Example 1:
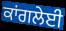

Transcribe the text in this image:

ਕਾਂਗਲੇਈ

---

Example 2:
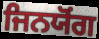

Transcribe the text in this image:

ਜਿਨਯੋਂਗ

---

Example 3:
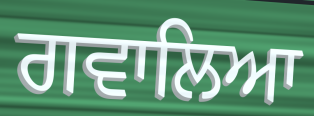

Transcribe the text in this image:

ਗਵਾਲਿਆ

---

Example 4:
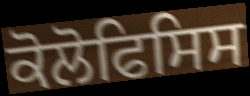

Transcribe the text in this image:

ਕੋਲੋਫਿਸਿਸ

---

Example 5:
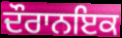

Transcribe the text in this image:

ਦੌਰਾਨਇਕ